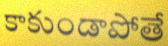
కాకుండాపోతే